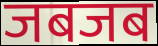
जबजब